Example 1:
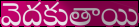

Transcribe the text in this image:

వెదకుతాయి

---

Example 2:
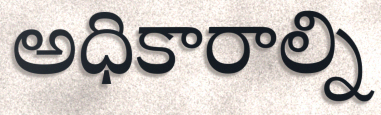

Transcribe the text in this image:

అధికారాల్ని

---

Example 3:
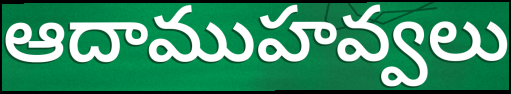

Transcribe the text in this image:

ఆదాముహవ్వలు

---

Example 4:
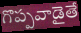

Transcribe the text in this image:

గొప్పవాడైతే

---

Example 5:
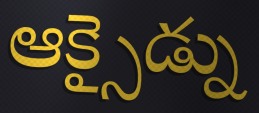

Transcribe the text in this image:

ఆక్సైడ్ను